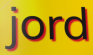
jord